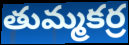
తుమ్మకర్ర